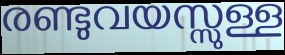
രണ്ടുവയസ്സുള്ള